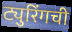
ट्युरिंगची